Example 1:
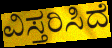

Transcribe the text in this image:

ವಿಸ್ತರಿಸಿದೆ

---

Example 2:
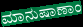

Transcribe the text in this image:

ಮಾನುಷಾಣಾಂ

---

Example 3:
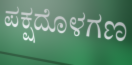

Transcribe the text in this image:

ಪಕ್ಷದೊಳಗಣ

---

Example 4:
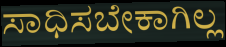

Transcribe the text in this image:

ಸಾಧಿಸಬೇಕಾಗಿಲ್ಲ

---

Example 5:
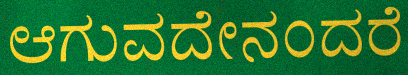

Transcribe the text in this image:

ಆಗುವದೇನಂದರೆ